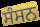
ਸੰਸਨ